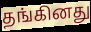
தங்கினது